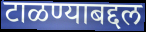
टाळण्याबद्दल